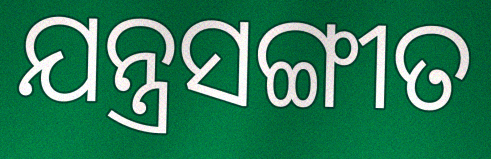
ଯନ୍ତ୍ରସଙ୍ଗୀତ